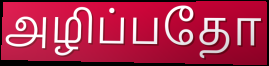
அழிப்பதோ